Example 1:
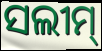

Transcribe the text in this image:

ସଲୀମ୍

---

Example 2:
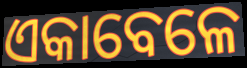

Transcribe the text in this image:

ଏକାବେଳେ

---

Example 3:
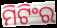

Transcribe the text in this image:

ମିଟିଂର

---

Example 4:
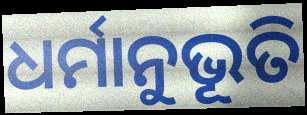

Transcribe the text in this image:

ଧର୍ମାନୁଭୂତି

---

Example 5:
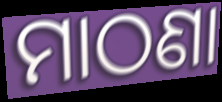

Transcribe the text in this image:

ମାଠଣା